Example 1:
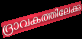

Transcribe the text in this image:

ദ്രാവകത്തിലേക്കു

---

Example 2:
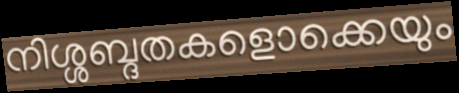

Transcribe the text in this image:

നിശ്ശബ്ദതകളൊക്കെയും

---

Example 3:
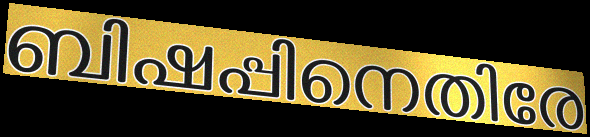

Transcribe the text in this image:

ബിഷപ്പിനെതിരേ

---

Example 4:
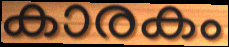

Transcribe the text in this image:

കാരകം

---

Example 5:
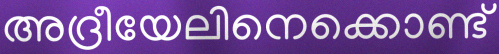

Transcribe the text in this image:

അദ്രീയേലിനെക്കൊണ്ട്